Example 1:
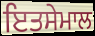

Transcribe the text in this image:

ਇਤਸੇਮਾਲ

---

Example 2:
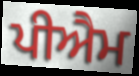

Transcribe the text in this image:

ਪੀਐਮ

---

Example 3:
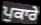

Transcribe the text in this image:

ਪੁਕਾਰੇ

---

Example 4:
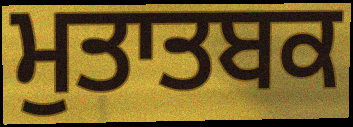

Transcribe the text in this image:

ਮੁਤਾਤਬਕ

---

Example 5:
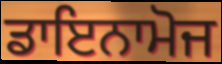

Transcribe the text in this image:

ਡਾਇਨਾਮੋਜ